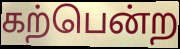
கற்பென்ற